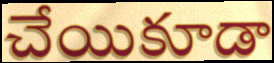
చేయికూడా